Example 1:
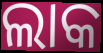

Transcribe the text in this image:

ଲାକ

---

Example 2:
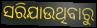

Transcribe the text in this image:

ସରିଯାଉଥିବାରୁ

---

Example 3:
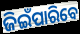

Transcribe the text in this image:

ଜିଇଁପାରିବେ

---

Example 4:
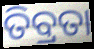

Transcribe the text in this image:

ତିବ୍ରତା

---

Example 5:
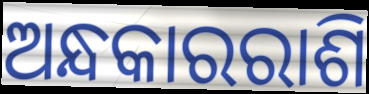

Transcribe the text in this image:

ଅନ୍ଧକାରରାଶି